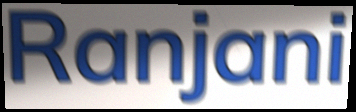
Ranjani